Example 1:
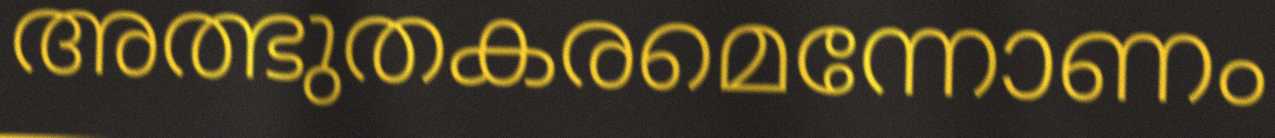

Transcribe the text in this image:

അത്ഭുതകരമെന്നോണം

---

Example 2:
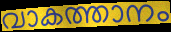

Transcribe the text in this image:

വാകത്താനം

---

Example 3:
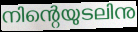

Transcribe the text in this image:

നിന്റെയുടലിനു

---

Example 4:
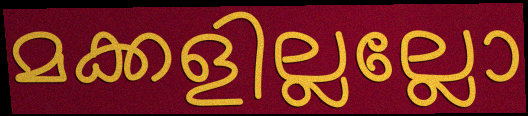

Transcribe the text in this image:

മക്കളില്ലല്ലോ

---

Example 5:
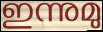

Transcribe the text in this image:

ഇന്നുമു